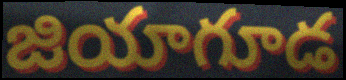
జియాగూడ